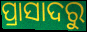
ପ୍ରାସାଦରୁ